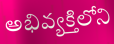
అభివ్యక్తిలోని